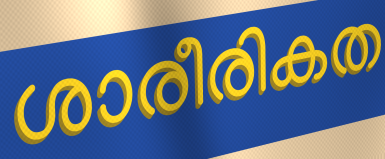
ശാരീരികത